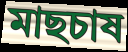
মাছচাষ